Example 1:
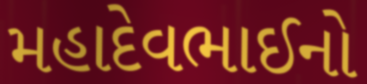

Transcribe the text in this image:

મહાદેવભાઈનો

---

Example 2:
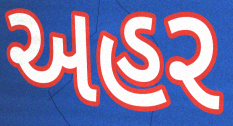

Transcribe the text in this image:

અહર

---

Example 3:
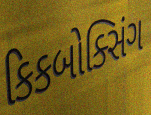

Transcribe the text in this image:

કિકબોક્સિંગ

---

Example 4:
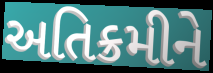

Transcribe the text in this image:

અતિક્રમીને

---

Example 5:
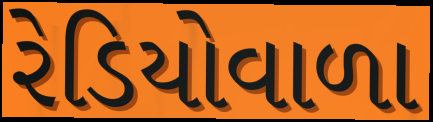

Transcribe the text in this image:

રેડિયોવાળા